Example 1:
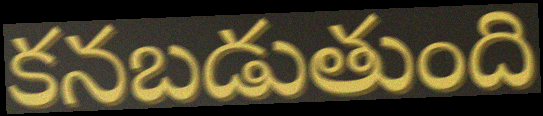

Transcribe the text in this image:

కనబడుతుంది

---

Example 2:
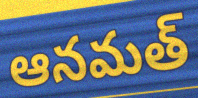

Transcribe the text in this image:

ఆనమత్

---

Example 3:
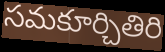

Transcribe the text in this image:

సమకూర్చితిరి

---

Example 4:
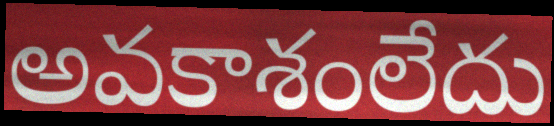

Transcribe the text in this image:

అవకాశంలేదు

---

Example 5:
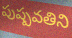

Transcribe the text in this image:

పుష్పవతిని